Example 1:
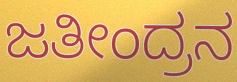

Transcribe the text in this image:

ಜತೀಂದ್ರನ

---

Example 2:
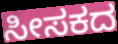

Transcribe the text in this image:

ಸೀಸಕದ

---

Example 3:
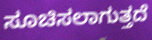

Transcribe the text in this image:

ಸೂಚಿಸಲಾಗುತ್ತದೆ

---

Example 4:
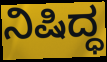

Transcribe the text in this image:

ನಿಷಿದ್ಧ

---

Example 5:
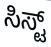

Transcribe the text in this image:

ಸಿಸ್ಟ್